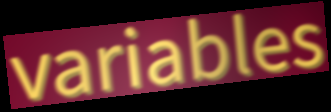
variables